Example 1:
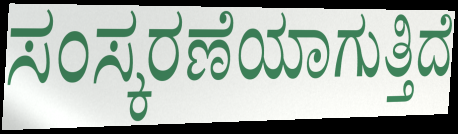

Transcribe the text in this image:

ಸಂಸ್ಕರಣೆಯಾಗುತ್ತಿದೆ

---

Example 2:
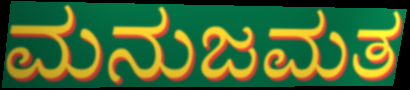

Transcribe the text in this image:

ಮನುಜಮತ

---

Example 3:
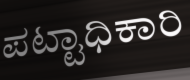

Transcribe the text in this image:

ಪಟ್ಟಾಧಿಕಾರಿ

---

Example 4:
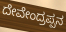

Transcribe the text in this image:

ದೇವೇಂದ್ರಪ್ಪನ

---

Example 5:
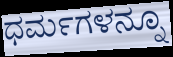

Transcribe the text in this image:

ಧರ್ಮಗಳನ್ನೂ